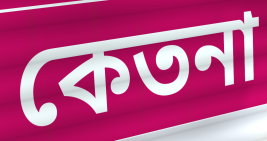
কেতনা